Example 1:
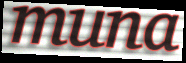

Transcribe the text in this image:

muna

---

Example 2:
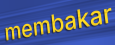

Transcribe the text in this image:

membakar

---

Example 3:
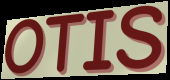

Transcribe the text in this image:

OTIS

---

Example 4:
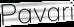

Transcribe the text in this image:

Pavari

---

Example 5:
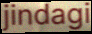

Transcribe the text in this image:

jindagi